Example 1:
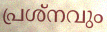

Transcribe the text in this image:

പ്രശ്നവും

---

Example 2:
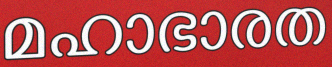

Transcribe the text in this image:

മഹാഭാരത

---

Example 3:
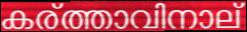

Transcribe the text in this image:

കര്ത്താവിനാല്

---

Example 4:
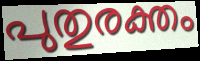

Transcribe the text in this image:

പുതുരക്തം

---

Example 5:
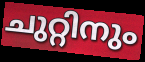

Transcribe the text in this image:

ചുറ്റിനും